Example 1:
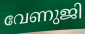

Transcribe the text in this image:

വേണുജി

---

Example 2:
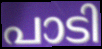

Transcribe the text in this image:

പാടി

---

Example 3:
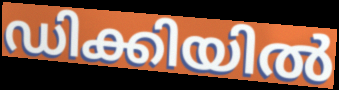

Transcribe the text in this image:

ഡിക്കിയിൽ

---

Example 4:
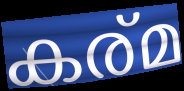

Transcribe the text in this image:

കര്മ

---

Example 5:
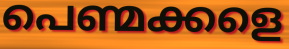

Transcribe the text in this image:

പെണ്മക്കളെ